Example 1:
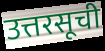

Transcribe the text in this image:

उत्तरसूची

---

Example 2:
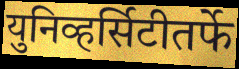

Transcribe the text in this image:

युनिव्हर्सिटीतर्फे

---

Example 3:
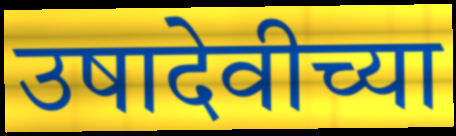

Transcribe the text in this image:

उषादेवीच्या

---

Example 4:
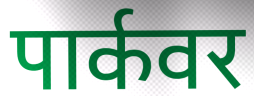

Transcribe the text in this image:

पार्कवर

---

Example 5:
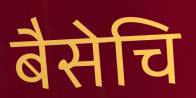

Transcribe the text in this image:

बैसेचि